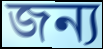
জন্য